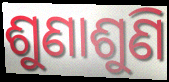
ଶୁଣାଶୁଣି